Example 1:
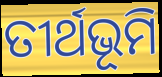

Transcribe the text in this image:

ତୀର୍ଥଭୂମି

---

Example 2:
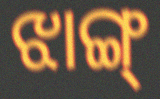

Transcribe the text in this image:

ଝାଙ୍ଗ୍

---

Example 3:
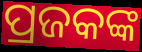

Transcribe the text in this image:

ପ୍ରଜକଙ୍କ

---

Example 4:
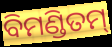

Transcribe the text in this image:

ବିମଣ୍ଡିତମ୍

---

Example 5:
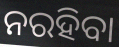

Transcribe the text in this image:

ନରହିବା